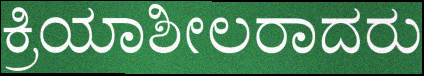
ಕ್ರಿಯಾಶೀಲರಾದರು